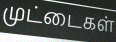
முட்டைகள்